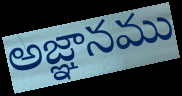
అజ్ఞానము